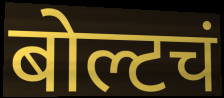
बोल्टचं